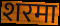
शरमा